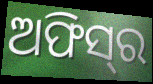
ଅଫିସ୍‌ର